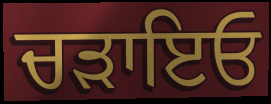
ਚੜਾਇਓ